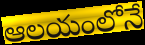
ఆలయంలోనే